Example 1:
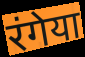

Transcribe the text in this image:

रंगेया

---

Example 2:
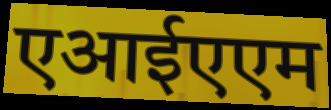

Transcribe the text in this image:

एआईएएम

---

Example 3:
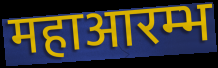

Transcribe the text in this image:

महाआरम्भ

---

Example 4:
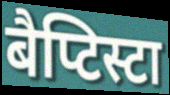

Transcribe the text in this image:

बैप्टिस्टा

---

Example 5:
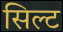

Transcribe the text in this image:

सिल्ट